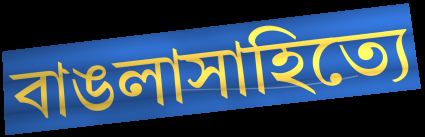
বাঙলাসাহিত্যে